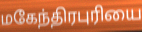
மகேந்திரபுரியை